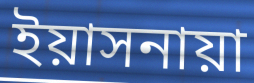
ইয়াসনায়া